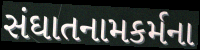
સંઘાતનામકર્મના